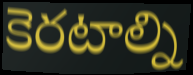
కెరటాల్ని